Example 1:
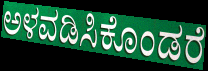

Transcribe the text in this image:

ಅಳವಡಿಸಿಕೊಂಡರೆ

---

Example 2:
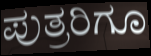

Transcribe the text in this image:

ಪುತ್ರರಿಗೂ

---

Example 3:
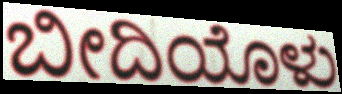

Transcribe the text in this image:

ಬೀದಿಯೊಳು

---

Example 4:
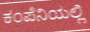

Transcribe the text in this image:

ಕಂಪೆನಿಯಲ್ಲಿ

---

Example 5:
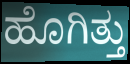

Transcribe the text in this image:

ಹೊಗಿತ್ತು